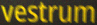
vestrum